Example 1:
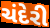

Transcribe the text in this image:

ચંદેરી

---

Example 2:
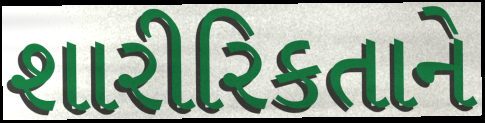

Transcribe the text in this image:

શારીરિકતાને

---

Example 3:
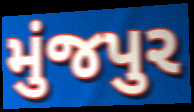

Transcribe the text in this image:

મુંજપુર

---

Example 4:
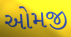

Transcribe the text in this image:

ઓમજી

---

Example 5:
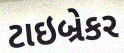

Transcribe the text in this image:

ટાઇબ્રેકર